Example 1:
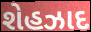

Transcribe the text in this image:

શેહઝાદ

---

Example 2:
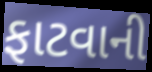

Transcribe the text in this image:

ફાટવાની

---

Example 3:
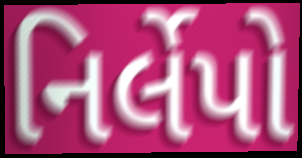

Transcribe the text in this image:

નિર્લેપો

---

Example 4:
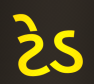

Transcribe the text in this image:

ટેડ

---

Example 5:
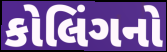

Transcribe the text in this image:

કોલિંગનો